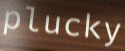
plucky